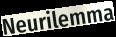
Neurilemma